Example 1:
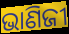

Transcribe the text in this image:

ଭାଣିଜୀ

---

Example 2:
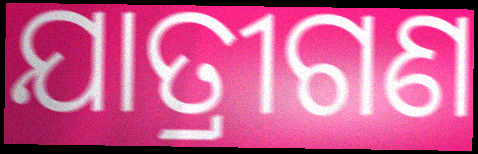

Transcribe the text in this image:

ଯାତ୍ରୀଗଣ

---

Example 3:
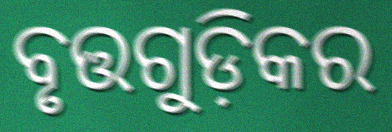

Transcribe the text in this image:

ବୃତ୍ତଗୁଡ଼ିକର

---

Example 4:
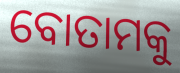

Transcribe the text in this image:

ବୋତାମକୁ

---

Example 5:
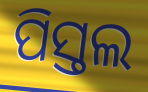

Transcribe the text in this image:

ପିସ୍ତଲ